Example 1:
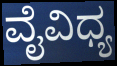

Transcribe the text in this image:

ವೈವಿಧ್ಯ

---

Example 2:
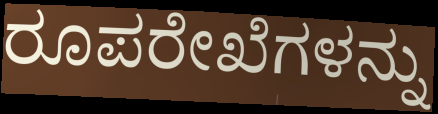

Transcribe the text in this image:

ರೂಪರೇಖೆಗಳನ್ನು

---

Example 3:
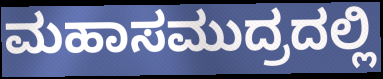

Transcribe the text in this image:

ಮಹಾಸಮುದ್ರದಲ್ಲಿ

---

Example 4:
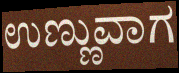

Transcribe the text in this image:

ಉಣ್ಣುವಾಗ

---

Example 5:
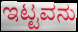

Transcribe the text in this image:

ಇಟ್ಟವನು